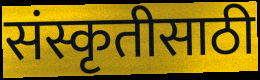
संस्कृतीसाठी